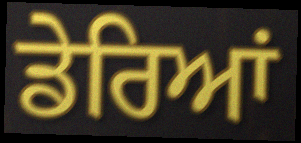
ਡੇਰਿਆਂ